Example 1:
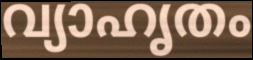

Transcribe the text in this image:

വ്യാഹൃതം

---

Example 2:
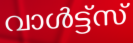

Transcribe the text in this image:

വാൾട്ട്സ്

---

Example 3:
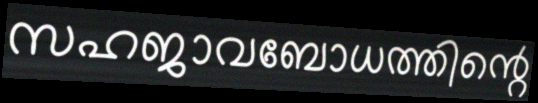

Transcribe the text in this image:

സഹജാവബോധത്തിന്റെ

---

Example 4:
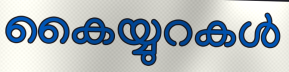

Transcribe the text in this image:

കൈയ്യുറകൾ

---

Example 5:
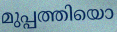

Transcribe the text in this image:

മുപ്പത്തിയൊ